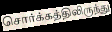
சொர்க்கத்திலிருந்து